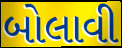
બોલાવી